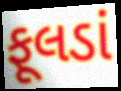
ફૂલડાં